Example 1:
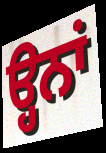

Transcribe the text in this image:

ੳ੍ਹਨਾਂ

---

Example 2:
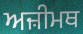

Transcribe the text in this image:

ਅਜ਼ੀਮਥ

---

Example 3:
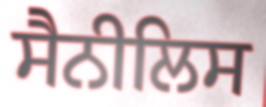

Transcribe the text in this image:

ਸੈਨੀਲਿਸ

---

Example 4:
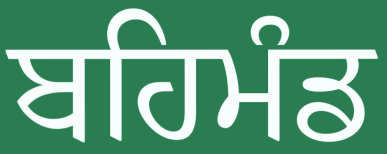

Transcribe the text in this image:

ਬਹਿਮੰਡ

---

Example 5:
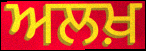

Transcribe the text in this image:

ਅਲਖ਼